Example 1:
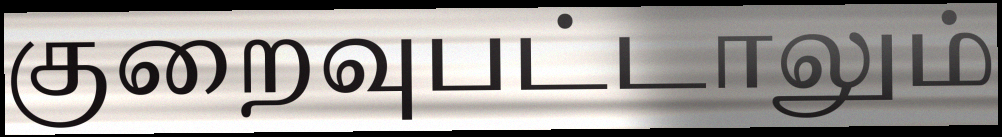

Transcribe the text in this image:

குறைவுபட்டாலும்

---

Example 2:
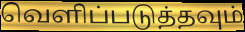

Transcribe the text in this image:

வெளிப்படுத்தவும்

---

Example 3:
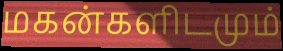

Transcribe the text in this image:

மகன்களிடமும்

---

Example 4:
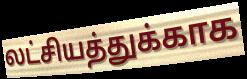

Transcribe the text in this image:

லட்சியத்துக்காக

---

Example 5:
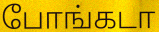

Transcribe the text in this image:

போங்கடா